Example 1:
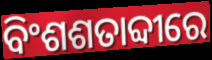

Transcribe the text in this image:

ବିଂଶଶତାବ୍ଦୀରେ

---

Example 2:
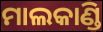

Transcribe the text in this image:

ମାଲକାଣ୍ଡି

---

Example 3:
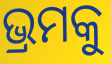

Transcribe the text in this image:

ଭ୍ରମକୁ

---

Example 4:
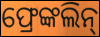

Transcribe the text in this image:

ଫ୍ରେଙ୍କଲିନ୍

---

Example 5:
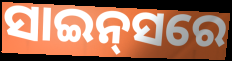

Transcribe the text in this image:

ସାଇନ୍‌ସରେ